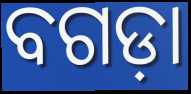
ବଗଡ଼ା